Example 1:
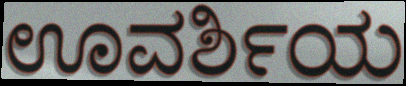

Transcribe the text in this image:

ಊವರ್ಶಿಯ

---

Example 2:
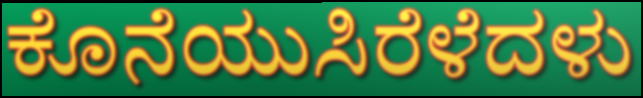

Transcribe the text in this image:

ಕೊನೆಯುಸಿರೆಳೆದಳು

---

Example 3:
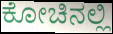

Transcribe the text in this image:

ಕೋಚಿನಲ್ಲಿ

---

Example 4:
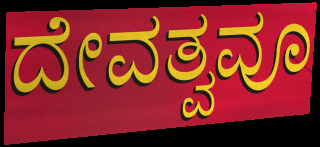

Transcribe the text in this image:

ದೇವತ್ವವೂ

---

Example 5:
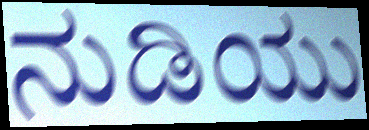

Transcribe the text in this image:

ನುಡಿಯು